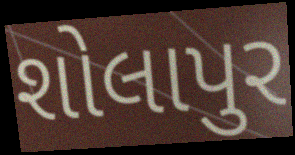
શોલાપુર